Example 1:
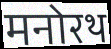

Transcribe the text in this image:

मनोरथ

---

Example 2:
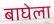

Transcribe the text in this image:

बाघेला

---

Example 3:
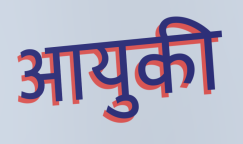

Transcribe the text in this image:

आयुकी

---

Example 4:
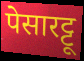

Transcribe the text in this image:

पेसारट्टू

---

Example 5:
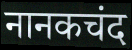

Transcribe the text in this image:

नानकचंद